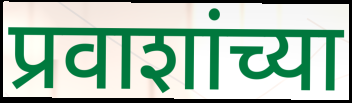
प्रवाशांच्या